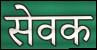
सेवक